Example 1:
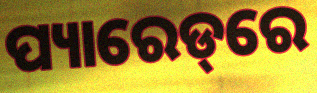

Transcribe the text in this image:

ପ୍ୟାରେଡ୍‌ରେ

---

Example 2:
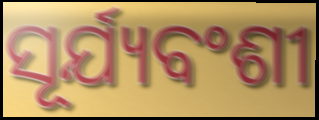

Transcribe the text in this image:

ସୂର୍ଯ୍ୟବଂଶୀ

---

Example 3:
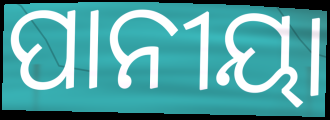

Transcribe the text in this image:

ପାନୀୟା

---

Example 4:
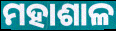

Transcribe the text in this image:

ମହାଶାଳ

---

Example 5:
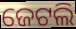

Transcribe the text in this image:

ଜେଟଲି